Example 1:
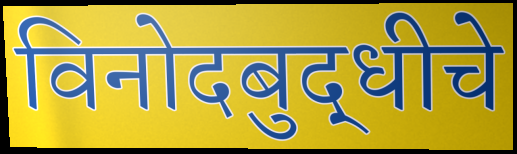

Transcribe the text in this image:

विनोदबुद्धीचे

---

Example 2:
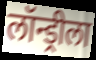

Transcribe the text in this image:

लॉन्ड्रीला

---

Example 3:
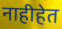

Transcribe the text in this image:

नाहीहेत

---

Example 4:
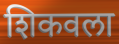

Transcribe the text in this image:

शिकवला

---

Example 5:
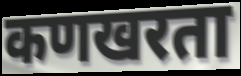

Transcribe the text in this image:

कणखरता